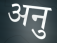
अनु